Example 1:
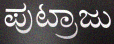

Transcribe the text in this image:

ಪುಟ್ರಾಜು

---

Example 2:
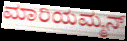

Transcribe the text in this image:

ಮಾರಿಯಮ್ಮನ್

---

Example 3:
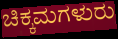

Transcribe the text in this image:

ಚಿಕ್ಕಮಗಳುರು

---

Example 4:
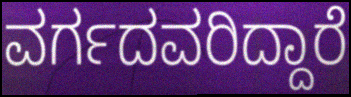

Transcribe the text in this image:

ವರ್ಗದವರಿದ್ದಾರೆ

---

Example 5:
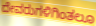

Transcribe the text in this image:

ದೇವರುಗಳಿಗಿಂತಲೂ